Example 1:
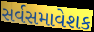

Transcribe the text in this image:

સર્વસમાવેશક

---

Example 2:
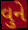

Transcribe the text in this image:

વુને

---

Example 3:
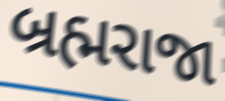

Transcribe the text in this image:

બ્રહ્મરાજા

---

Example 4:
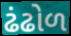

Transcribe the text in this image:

ઢંઢોળ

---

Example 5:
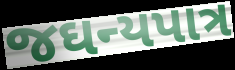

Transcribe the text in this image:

જઘન્યપાત્ર